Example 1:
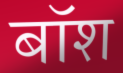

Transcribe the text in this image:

बॉश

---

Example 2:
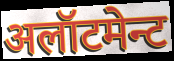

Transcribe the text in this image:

अलॉटमेन्ट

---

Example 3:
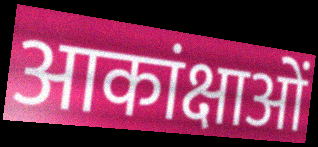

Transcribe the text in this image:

आकांक्षाओं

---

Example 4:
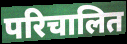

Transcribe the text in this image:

परिचालित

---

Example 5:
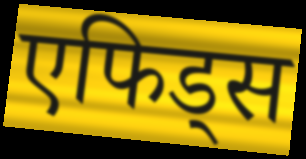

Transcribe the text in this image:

एफिड्स